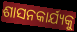
ଶାସନକାର୍ଯ୍ୟକୁ